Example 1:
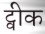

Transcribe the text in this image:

ट्वीक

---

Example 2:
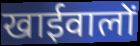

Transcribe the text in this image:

खाईवालों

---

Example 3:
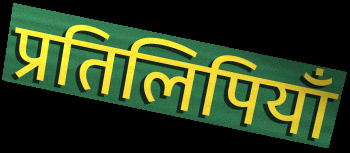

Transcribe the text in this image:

प्रतिलिपियाँ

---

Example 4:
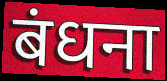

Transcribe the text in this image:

बंधना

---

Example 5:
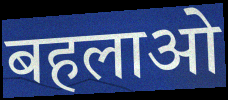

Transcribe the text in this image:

बहलाओ